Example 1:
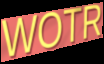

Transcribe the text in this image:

WOTR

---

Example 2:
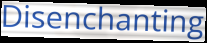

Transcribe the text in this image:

Disenchanting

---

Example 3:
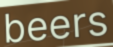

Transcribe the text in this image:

beers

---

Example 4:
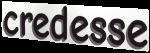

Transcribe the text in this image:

credesse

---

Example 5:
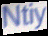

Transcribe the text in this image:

Ntiy